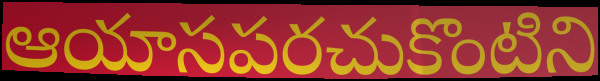
ఆయాసపరచుకొంటిని